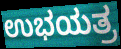
ಉಭಯತ್ರ